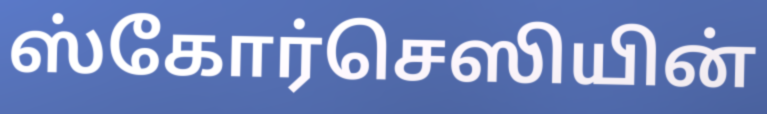
ஸ்கோர்செஸியின்